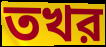
তখর